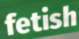
fetish